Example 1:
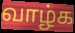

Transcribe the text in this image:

வாழ்க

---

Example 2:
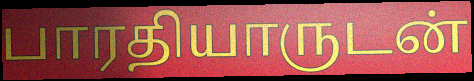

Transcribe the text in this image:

பாரதியாருடன்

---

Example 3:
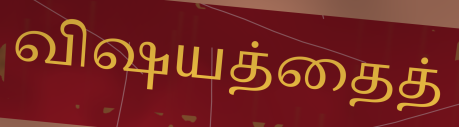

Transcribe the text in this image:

விஷயத்தைத்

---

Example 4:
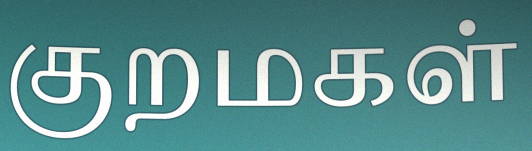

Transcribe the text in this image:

குறமகள்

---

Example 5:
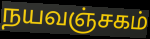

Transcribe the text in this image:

நயவஞ்சகம்